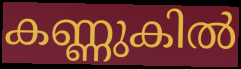
കണ്ണുകിൽ